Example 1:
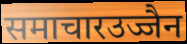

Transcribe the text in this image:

समाचारउज्जैन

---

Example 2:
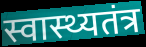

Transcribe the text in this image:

स्वास्थ्यतंत्र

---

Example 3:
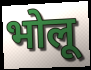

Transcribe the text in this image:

भोलू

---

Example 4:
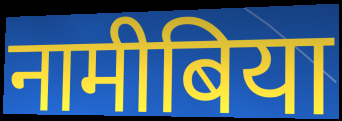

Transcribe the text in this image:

नामीबिया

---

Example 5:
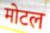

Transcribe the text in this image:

मोटल